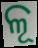
ଳୂ